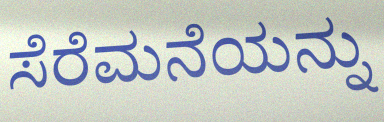
ಸೆರೆಮನೆಯನ್ನು